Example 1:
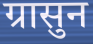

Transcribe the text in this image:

ग्रासुन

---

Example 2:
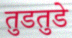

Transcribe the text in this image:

तुडतुडे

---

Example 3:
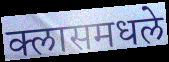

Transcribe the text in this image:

क्लासमधले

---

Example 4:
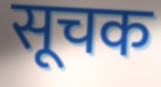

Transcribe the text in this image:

सूचक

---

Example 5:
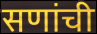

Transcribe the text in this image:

सणांची